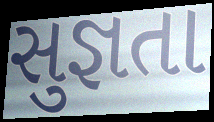
સુજ્ઞતા